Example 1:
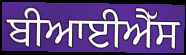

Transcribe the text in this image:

ਬੀਆਈਐੱਸ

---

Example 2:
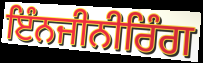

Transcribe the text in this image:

ਇੰਨਜੀਨੀਰਿੰਗ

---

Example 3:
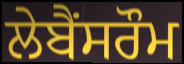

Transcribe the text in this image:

ਲੇਬੈਂਸਰੌਮ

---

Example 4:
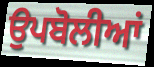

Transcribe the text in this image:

ਉਪਬੋਲੀਆਂ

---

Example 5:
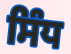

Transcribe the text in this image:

ਸਿੰਧ